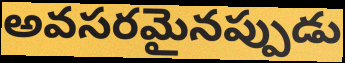
అవసరమైనప్పుడు